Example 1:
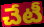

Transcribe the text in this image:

చేటీ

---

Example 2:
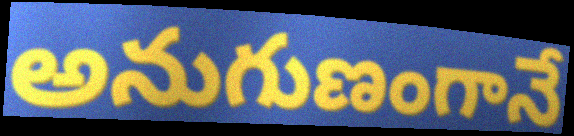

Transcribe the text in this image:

అనుగుణంగానే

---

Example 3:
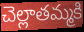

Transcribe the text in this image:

చెల్లాతమ్మకి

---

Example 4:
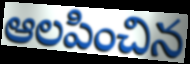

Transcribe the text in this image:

ఆలపించిన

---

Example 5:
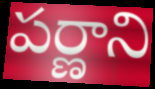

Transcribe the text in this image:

పర్ణాని